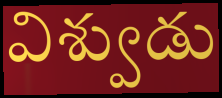
విశ్వుడు